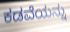
ಕಡವೆಯನ್ನು